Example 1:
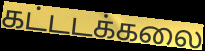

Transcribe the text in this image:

கட்டடக்கலை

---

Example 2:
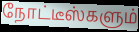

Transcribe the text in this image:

நோட்டீஸ்களும்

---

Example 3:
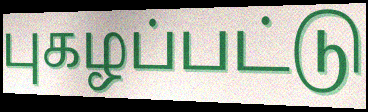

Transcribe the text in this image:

புகழப்பட்டு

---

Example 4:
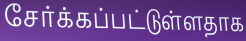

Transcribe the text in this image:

சேர்க்கப்பட்டுள்ளதாக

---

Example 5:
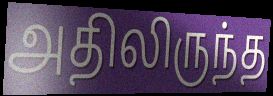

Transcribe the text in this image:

அதிலிருந்த